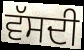
ਵੱਸਦੀ